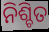
ନିଶ୍ଚିତ